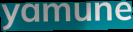
yamune